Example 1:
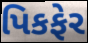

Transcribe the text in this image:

પિકફેર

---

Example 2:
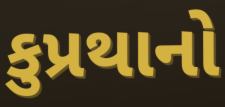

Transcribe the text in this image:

કુપ્રથાનો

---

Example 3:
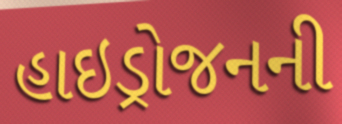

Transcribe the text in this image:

હાઇડ્રોજનની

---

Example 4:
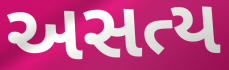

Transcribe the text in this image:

અસત્ય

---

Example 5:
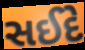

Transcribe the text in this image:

સઈદે